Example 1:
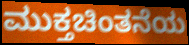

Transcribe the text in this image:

ಮುಕ್ತಚಿಂತನೆಯ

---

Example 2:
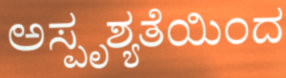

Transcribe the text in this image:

ಅಸ್ಪೃಶ್ಯತೆಯಿಂದ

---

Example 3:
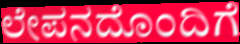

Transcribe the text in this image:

ಲೇಪನದೊಂದಿಗೆ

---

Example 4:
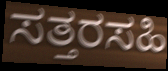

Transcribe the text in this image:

ಸತ್ತರಸಹಿ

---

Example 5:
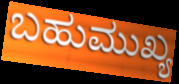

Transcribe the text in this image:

ಬಹುಮುಖ್ಯ